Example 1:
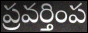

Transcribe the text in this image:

ప్రవర్తింప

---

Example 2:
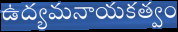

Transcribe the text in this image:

ఉద్యమనాయకత్వం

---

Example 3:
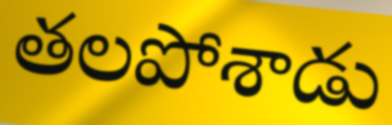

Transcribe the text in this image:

తలపోశాడు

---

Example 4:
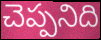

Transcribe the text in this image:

చెప్పనిది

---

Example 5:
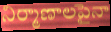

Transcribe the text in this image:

నిర్మాణాలపైనా